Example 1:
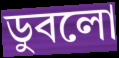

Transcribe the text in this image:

ডুবলো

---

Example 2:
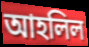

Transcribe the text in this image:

আহলিল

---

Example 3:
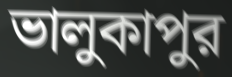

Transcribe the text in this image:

ভালুকাপুর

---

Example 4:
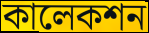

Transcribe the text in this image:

কালেকশন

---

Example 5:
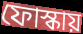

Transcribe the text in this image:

ফোস্কায়